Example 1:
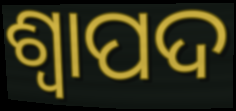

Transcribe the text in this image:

ଶ୍ୱାପଦ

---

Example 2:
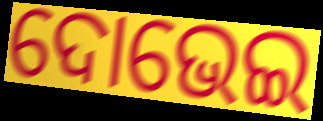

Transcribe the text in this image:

ଦୋଭେଇ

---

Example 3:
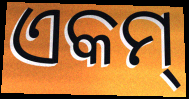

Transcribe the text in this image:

ଏକମ୍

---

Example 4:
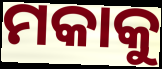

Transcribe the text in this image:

ମକାକୁ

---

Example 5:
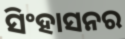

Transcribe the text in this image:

ସିଂହାସନର